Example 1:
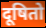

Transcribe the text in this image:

दूषितो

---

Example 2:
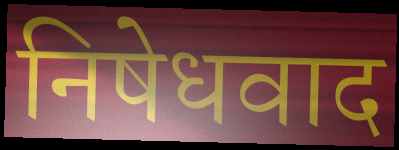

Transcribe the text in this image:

निषेधवाद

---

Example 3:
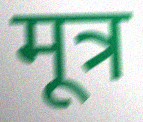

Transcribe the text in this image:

मूत्र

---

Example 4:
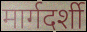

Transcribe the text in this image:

मार्गदर्शी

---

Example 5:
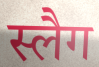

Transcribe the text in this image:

स्लैग